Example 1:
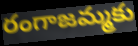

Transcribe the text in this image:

రంగాజమ్మకు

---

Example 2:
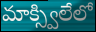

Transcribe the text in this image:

మాక్స్విలేలో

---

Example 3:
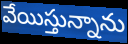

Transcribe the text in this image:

వేయిస్తున్నాను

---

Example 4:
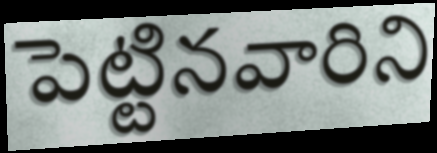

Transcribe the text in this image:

పెట్టినవారిని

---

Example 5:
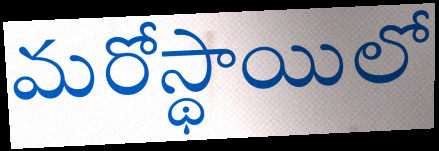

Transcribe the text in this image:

మరోస్థాయిలో